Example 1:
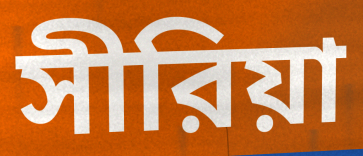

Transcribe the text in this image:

সীরিয়া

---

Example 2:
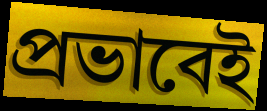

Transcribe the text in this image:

প্রভাবেই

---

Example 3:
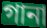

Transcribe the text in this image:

গানা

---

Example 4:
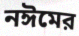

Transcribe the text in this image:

নঈমের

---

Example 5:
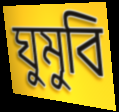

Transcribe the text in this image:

ঘুমুবি